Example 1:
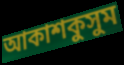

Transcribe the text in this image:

আকাশকুসুম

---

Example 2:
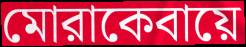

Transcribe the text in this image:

মোরাকেবায়ে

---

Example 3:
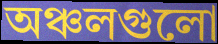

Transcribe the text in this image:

অঞ্চলগুলো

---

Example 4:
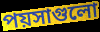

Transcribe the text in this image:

পয়সাগুলো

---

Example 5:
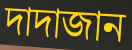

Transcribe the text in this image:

দাদাজান